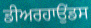
ਡੀਅਰਹਾਉਂਡਸ